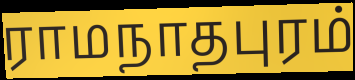
ராமநாதபுரம்